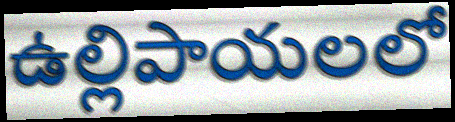
ఉల్లిపాయలలో